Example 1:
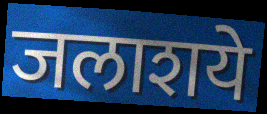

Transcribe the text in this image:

जलाशये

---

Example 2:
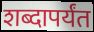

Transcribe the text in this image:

शब्दापर्यंत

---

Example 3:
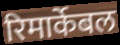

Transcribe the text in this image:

रिमार्केबल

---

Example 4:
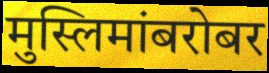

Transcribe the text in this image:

मुस्लिमांबरोबर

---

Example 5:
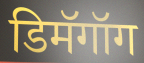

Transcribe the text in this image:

डिमॅगॉग